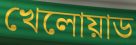
খেলোয়াড